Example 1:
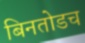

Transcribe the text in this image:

बिनतोडच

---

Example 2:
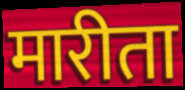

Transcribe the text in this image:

मारीता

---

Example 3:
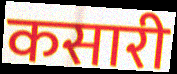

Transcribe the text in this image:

कसारी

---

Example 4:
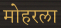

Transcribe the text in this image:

मोहरला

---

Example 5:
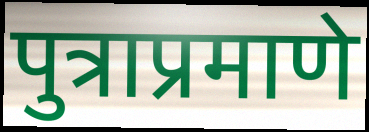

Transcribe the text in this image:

पुत्राप्रमाणे